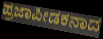
ಪ್ರಜಾಪೀಡಕನಾದ